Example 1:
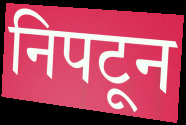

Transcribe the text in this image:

निपटून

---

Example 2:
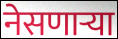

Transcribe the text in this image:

नेसणाऱ्या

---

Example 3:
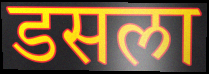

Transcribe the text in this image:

डसला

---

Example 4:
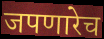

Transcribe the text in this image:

जपणारेच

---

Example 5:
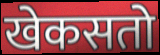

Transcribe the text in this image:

खेकसतो